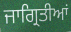
ਜਾਗ੍ਰਿਤੀਆਂ